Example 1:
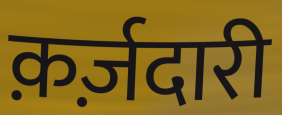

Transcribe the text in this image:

क़र्ज़दारी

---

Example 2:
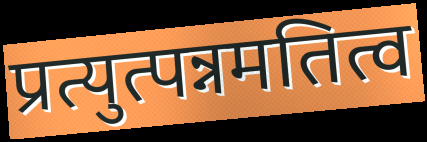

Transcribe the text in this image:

प्रत्युत्पन्नमतित्व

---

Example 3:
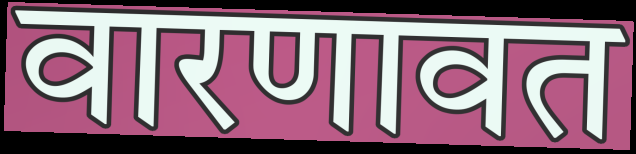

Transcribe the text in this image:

वारणावत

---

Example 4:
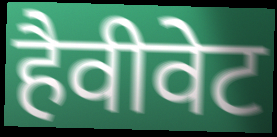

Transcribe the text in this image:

हैवीवेट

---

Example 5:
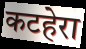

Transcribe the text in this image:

कटहेरा